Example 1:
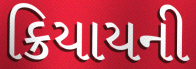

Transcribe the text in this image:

ક્રિયાયની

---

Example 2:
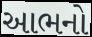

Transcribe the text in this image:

આભનો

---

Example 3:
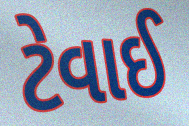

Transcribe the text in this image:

ટેવાઈ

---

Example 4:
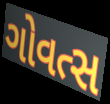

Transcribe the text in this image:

ગોવત્સ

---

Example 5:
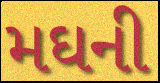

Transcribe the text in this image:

મઘની